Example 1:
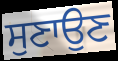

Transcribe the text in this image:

ਸੁਣਾਉਣ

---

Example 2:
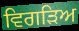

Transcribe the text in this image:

ਵਿਗੜਿਅ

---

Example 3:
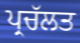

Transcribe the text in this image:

ਪ੍ਰਚੱਲਤ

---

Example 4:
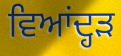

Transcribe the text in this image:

ਵਿਆਂਦ੍ਹੜ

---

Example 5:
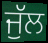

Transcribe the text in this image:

ਜੁੱਲ